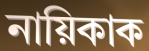
নায়িকাক